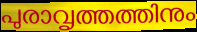
പുരാവൃത്തത്തിനും